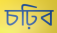
চঢ়িব